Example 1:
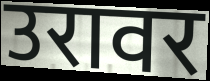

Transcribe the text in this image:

उरावर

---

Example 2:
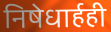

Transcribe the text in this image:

निषेधार्हही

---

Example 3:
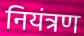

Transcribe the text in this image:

नियंत्रण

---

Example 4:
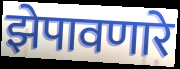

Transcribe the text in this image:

झेपावणारे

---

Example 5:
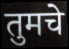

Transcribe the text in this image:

तुमचे